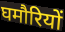
घमौरियों